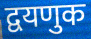
द्वयणुक